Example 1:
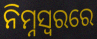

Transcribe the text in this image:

ନିମ୍ନସ୍ୱରରେ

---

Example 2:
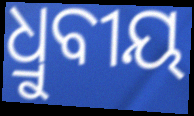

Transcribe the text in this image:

ଧ୍ରୁବୀୟ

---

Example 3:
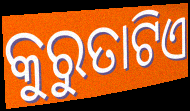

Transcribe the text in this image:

କୁରୁତାଟିଏ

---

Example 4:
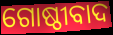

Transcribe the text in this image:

ଗୋଷ୍ଠୀବାଦ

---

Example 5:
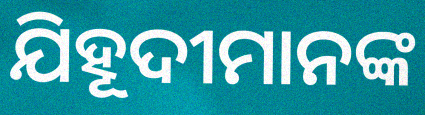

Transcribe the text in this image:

ଯିହୂଦୀମାନଙ୍କ